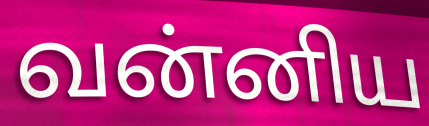
வன்னிய